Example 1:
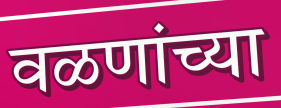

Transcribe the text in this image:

वळणांच्या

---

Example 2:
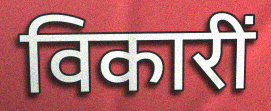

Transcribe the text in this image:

विकारीं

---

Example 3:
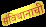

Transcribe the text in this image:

संविधानाची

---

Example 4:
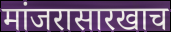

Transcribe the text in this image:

मांजरासारखाच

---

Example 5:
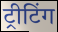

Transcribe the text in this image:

ट्रीटिंग